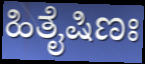
ಹಿತೈಷಿಣಃ